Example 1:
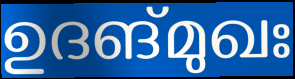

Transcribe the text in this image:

ഉദങ്മുഖഃ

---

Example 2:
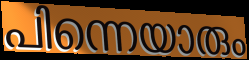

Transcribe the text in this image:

പിന്നെയാരും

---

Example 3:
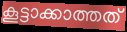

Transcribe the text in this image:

കൂട്ടാക്കാത്തത്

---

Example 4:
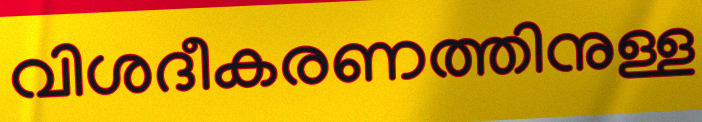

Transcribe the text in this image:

വിശദീകരണത്തിനുള്ള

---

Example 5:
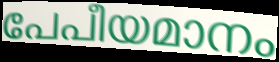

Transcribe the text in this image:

പേപീയമാനം